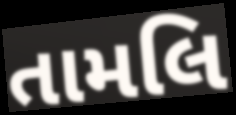
તામલિ